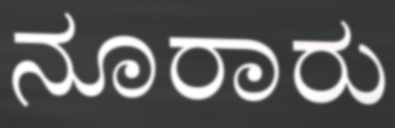
ನೂರಾರು